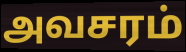
அவசரம்